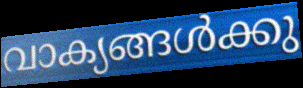
വാക്യങ്ങൾക്കു